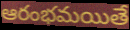
ఆరంభమయితే